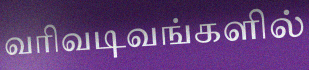
வரிவடிவங்களில்